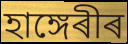
হাঙ্গেৰীৰ